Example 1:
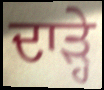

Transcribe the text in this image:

ਦਾੜ੍ਹੇ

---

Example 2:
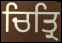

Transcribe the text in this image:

ਚਿਤ੍ਰਿ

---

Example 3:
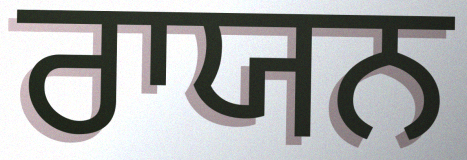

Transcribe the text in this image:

ਰਾਯਨ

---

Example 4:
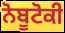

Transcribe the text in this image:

ਨੋਬੂਟੋਕੀ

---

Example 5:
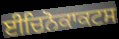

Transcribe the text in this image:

ਈਚਿਨੋਕਾਕਟਸ